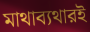
মাথাব্যথারই